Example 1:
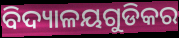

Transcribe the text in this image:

ବିଦ୍ୟାଳୟଗୁଡିକର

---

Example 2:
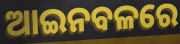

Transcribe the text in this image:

ଆଇନବଳରେ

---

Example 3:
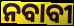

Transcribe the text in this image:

ନବାବୀ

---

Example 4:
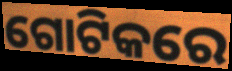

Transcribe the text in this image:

ଗୋଟିକରେ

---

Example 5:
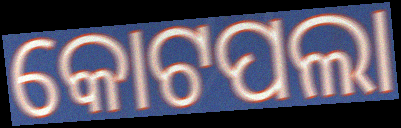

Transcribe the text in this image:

କୋଟପଲା